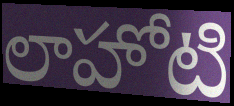
లాహోటి